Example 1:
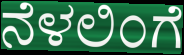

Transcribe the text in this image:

ನೆಳಲಿಂಗೆ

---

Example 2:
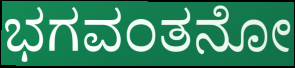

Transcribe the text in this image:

ಭಗವಂತನೋ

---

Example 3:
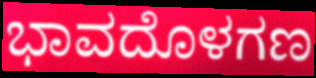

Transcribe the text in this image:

ಭಾವದೊಳಗಣ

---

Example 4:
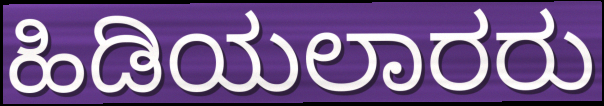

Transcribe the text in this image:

ಹಿಡಿಯಲಾರರು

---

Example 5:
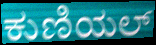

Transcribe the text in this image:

ಕುಣಿಯಲ್